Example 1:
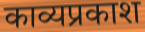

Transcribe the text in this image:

काव्यप्रकाश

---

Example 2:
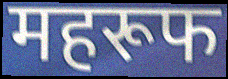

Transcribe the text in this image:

महरूफ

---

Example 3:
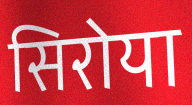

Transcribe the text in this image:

सिरोया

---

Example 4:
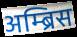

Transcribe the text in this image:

अम्ब्रिस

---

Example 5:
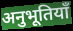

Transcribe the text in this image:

अनुभूतियाँ